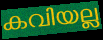
കവിയല്ല